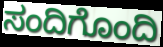
ಸಂದಿಗೊಂದಿ